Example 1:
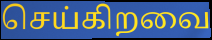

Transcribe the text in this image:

செய்கிறவை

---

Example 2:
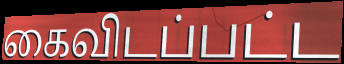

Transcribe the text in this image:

கைவிடப்பட்ட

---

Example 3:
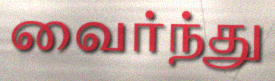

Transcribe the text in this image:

வைர்ந்து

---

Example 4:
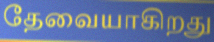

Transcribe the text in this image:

தேவையாகிறது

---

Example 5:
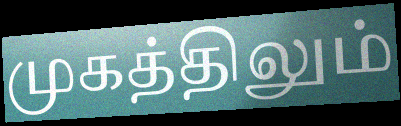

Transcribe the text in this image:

முகத்திலும்